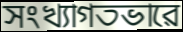
সংখ্যাগতভাৱে